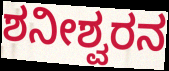
ಶನೀಶ್ವರನ